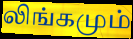
லிங்கமும்